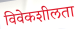
विवेकशीलता